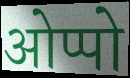
ओप्पो